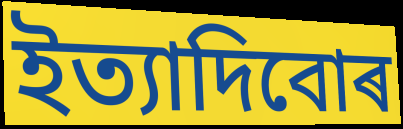
ইত্যাদিবোৰ